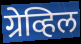
ग्रेव्हिल